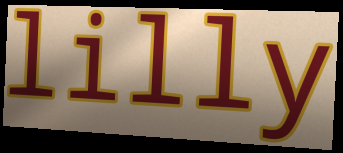
lilly